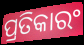
ପ୍ରତିକାରଂ